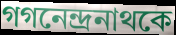
গগনেন্দ্রনাথকে